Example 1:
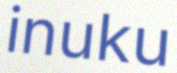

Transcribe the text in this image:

inuku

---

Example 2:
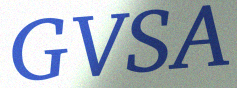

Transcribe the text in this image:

GVSA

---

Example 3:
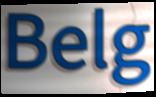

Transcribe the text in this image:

Belg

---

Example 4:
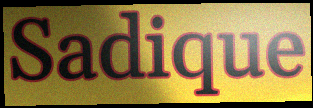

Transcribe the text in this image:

Sadique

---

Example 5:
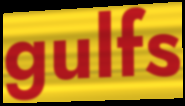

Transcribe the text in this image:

gulfs